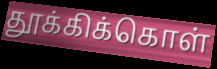
தூக்கிக்கொள்